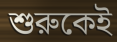
শুরুকেই